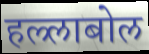
हल्लाबोल